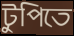
টুপিতে